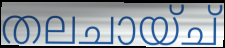
തലചായ്ച്